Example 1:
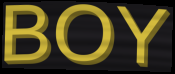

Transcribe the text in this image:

BOY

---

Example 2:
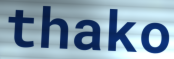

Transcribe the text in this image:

thako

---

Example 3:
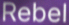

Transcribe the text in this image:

Rebel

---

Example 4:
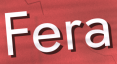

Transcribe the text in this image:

Fera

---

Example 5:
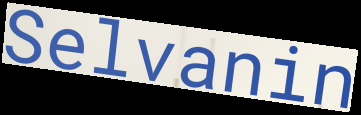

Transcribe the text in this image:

Selvanin